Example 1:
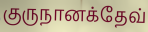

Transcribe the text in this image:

குருநானக்தேவ்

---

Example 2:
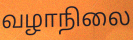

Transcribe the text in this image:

வழாநிலை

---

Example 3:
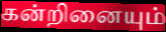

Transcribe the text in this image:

கன்றினையும்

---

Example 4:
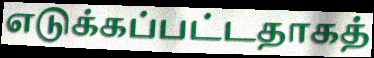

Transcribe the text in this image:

எடுக்கப்பட்டதாகத்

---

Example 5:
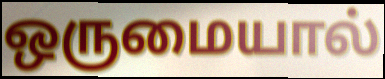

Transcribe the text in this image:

ஒருமையால்